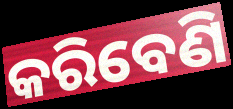
କରିବେଣି